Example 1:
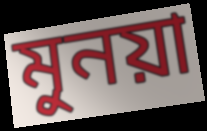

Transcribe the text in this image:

মুনয়া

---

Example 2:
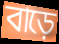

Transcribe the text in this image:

বাড়ে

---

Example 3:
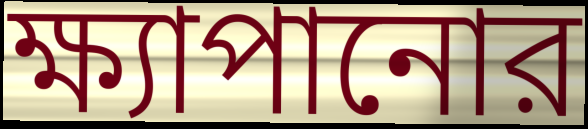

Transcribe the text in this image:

ক্ষ্যাপানোর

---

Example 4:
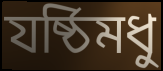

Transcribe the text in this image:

যষ্ঠিমধু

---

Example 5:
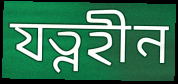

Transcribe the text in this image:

যত্নহীন